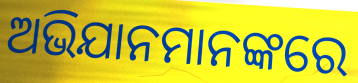
ଅଭିଯାନମାନଙ୍କରେ